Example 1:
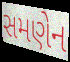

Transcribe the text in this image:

સમણેન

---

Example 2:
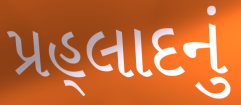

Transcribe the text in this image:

પ્રહ્‌લાદનું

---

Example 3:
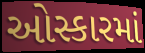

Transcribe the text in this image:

ઓસ્કારમાં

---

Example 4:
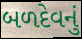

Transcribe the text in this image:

બળદેવનું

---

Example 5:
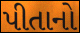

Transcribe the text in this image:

પીતાનો